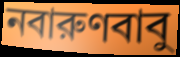
নবারুণবাবু